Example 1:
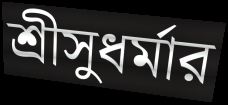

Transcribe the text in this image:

শ্রীসুধর্মার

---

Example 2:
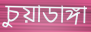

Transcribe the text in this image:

চুয়াডাঙ্গা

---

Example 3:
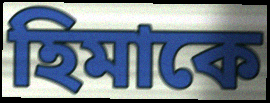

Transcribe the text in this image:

হিমাকে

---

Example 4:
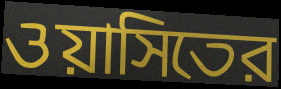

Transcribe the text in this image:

ওয়াসিতের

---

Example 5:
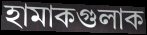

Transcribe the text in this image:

হামাকগুলাক